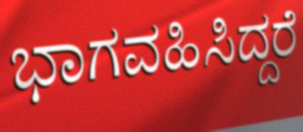
ಭಾಗವಹಿಸಿದ್ದರೆ